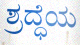
ಶ್ರದ್ಧೆಯ